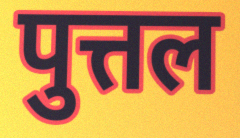
पुत्तल